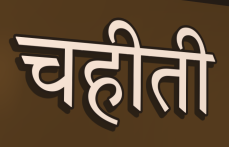
चहीती